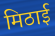
मिठाई